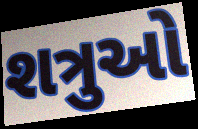
શત્રુઓ